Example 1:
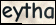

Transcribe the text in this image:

eytha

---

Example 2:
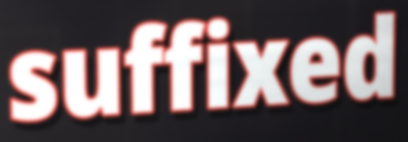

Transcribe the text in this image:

suffixed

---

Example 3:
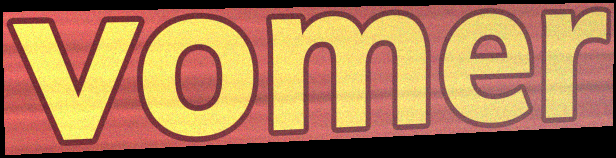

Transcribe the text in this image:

vomer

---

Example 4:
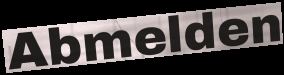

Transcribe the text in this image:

Abmelden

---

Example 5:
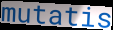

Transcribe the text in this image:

mutatis